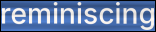
reminiscing